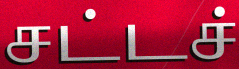
சட்டச்